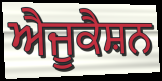
ਐਜੂਕੈਸ਼ਨ